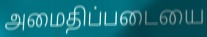
அமைதிப்படையை